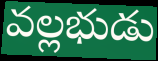
వల్లభుడు